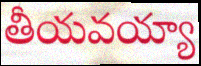
తీయవయ్యా